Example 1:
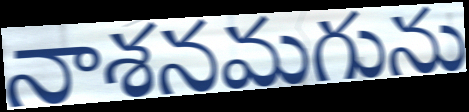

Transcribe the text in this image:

నాశనమగును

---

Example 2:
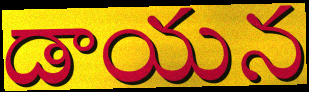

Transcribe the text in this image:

డాయన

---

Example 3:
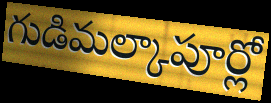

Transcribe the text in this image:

గుడిమల్కాపూర్లో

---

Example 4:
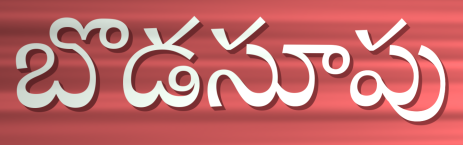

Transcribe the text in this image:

బొడసూపు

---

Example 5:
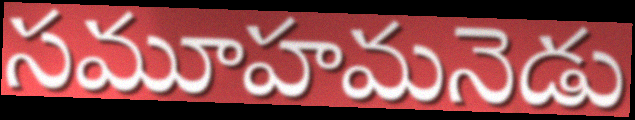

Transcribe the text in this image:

సమూహమనెడు